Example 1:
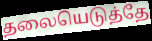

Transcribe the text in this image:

தலையெடுத்தே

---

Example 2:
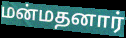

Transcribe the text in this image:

மன்மதனார்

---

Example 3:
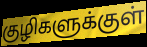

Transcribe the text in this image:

குழிகளுக்குள்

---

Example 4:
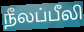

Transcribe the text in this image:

நீலப்பீலி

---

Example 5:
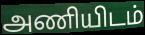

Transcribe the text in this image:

அணியிடம்